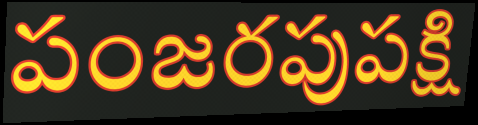
పంజరపుపక్షి